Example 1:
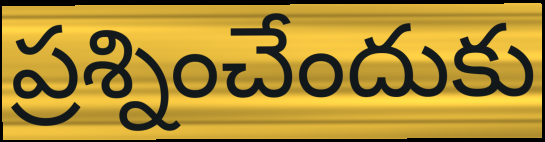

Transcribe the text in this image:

ప్రశ్నించేందుకు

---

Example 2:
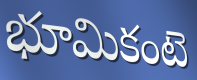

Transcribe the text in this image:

భూమికంటె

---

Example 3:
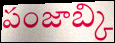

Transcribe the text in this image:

పంజాబ్కి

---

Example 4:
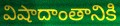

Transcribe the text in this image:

విషాదాంతానికి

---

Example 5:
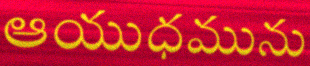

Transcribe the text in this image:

ఆయుధమును